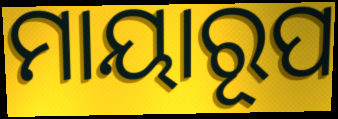
ମାୟାରୂପ